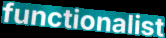
functionalist